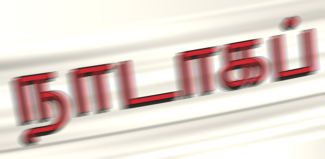
நாடாகப்